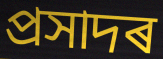
প্ৰসাদৰ